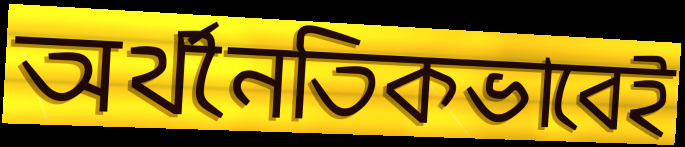
অর্থনৈতিকভাবেই